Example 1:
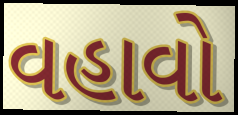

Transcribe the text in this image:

વહાવો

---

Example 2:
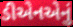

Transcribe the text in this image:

ડીએનએનું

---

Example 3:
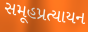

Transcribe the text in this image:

સમૂહપ્રત્યાયન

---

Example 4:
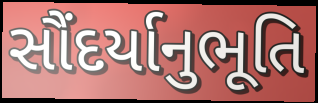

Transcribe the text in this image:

સૌંદર્યાનુભૂતિ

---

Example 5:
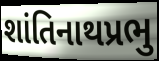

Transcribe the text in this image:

શાંતિનાથપ્રભુ